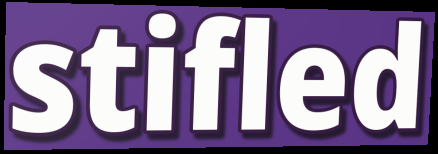
stifled